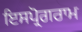
ਇਸਪ੍ਰੋਗਰਾਮ